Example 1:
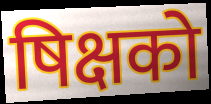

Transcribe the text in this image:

षिक्षको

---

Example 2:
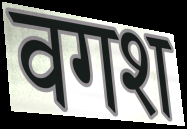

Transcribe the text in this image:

वगश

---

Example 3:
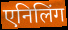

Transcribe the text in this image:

एनिलिंग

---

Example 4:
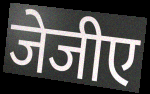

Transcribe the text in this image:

जेजीए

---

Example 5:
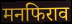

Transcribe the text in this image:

मनफिराव